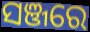
ସଞ୍ଜରେ